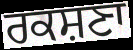
ਰਕਸ਼ਣਾ